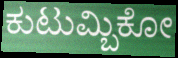
ಕುಟುಮ್ಬಿಕೋ